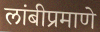
लांबीप्रमाणे